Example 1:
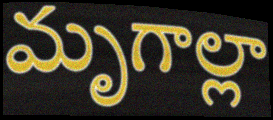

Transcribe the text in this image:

మృగాల్లా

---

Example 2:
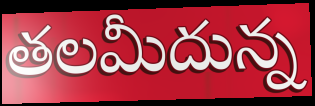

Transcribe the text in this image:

తలమీదున్న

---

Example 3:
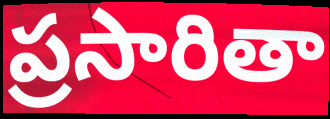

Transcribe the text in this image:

ప్రసారితా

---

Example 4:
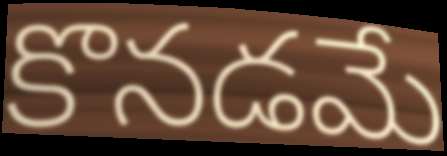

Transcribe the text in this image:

కొనడమే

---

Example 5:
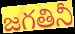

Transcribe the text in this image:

జగతినీ